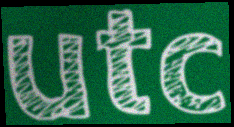
utc